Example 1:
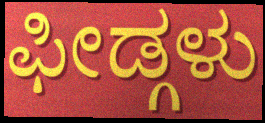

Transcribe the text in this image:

ಫೀಡ್ಗಳು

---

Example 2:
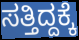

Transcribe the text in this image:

ಸತ್ತಿದ್ದಕ್ಕೆ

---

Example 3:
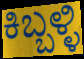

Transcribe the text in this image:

ಕಿಬ್ಬಳ್ಳಿ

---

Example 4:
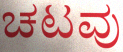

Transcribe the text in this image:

ಚಟವು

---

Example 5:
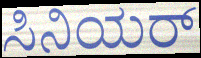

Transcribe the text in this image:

ಸಿನಿಯರ್